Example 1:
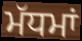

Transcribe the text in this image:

ਮੱਧਮਾਂ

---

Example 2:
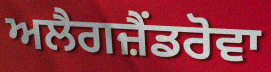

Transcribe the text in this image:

ਅਲੈਗਜ਼ੈਂਡਰੋਵਾ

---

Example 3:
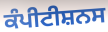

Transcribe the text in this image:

ਕੰਪੀਟੀਸ਼ਨਸ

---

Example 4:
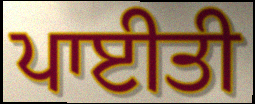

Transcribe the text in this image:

ਪਾਈਤੀ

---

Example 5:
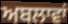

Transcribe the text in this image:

ਅਬਲਾਵਾਂ